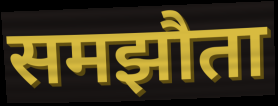
समझौता